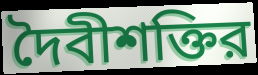
দৈবীশক্তির